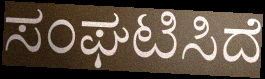
ಸಂಘಟಿಸಿದೆ